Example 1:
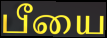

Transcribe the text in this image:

பீயை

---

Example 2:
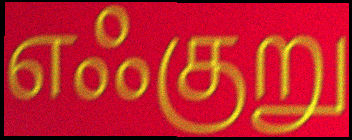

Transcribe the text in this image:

எஃகுறு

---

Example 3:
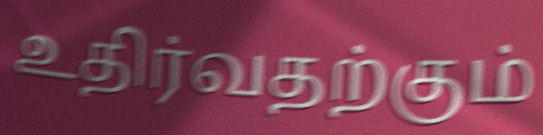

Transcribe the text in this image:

உதிர்வதற்கும்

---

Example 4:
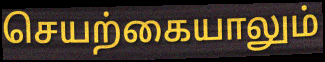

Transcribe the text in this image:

செயற்கையாலும்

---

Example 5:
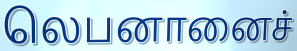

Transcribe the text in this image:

லெபனானைச்